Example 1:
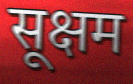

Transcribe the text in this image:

सूक्षम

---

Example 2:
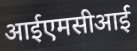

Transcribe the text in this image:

आईएमसीआई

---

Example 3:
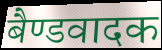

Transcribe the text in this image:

बैण्डवादक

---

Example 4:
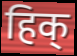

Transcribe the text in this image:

हिक्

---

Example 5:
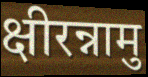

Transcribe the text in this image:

क्षीरन्नामु